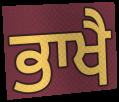
ਭਾਖੈ